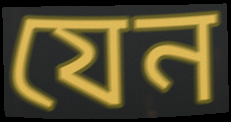
যেন